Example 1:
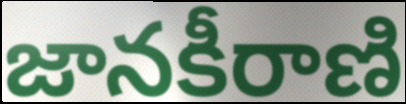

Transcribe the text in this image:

జానకీరాణి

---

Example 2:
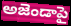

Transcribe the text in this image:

అజెండాపై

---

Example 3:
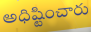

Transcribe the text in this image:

అధిష్టించారు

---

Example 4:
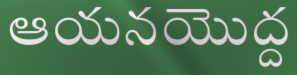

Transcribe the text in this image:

ఆయనయొద్ద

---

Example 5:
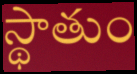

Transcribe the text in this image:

స్థాతుం